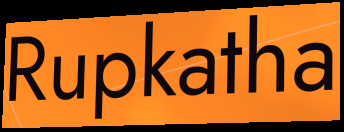
Rupkatha